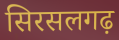
सिरसलगढ़